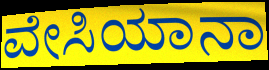
ವೇಸಿಯಾನಾ